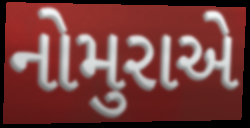
નોમુરાએ